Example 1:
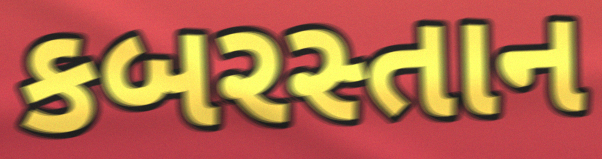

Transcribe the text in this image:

કબરસ્તાન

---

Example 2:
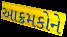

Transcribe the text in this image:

આક્રમકોને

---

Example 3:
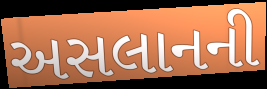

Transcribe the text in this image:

અસલાનની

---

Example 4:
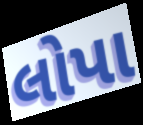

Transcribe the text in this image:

લોપા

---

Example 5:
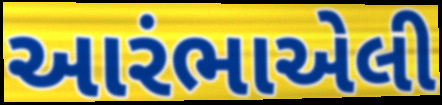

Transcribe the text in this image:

આરંભાએલી